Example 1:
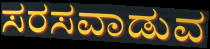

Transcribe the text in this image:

ಸರಸವಾಡುವ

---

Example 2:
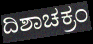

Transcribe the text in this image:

ದಿಶಾಚಕ್ರಂ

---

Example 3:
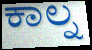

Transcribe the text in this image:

ಕಾಲ್ನ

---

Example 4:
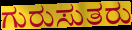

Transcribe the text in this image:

ಗುರುಸುತರು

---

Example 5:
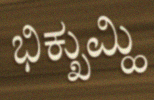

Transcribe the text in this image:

ಭಿಕ್ಖುಮ್ಹಿ